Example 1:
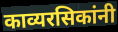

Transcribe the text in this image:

काव्यरसिकांनी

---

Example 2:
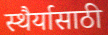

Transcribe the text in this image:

स्थैर्यासाठी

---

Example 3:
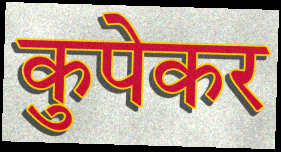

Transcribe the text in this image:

कुपेकर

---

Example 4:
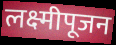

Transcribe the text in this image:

लक्ष्मीपूजन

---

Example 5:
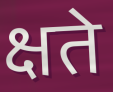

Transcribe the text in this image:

क्षते